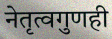
नेतृत्वगुणही